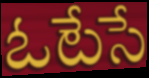
ఓటేసే